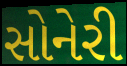
સોનેરી